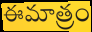
ఈమాత్రం